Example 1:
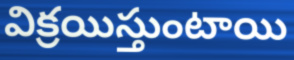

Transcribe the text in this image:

విక్రయిస్తుంటాయి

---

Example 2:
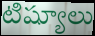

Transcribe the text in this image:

టిష్యూలు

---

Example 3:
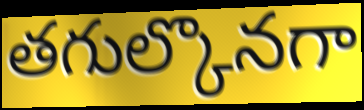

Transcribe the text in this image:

తగుల్కొనగా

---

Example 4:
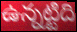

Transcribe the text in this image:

ఉన్నట్టిది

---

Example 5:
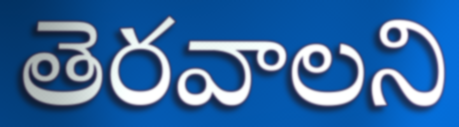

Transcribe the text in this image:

తెరవాలని